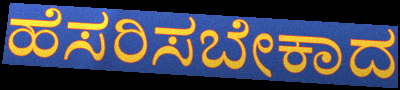
ಹೆಸರಿಸಬೇಕಾದ